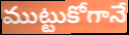
ముట్టుకోగానే